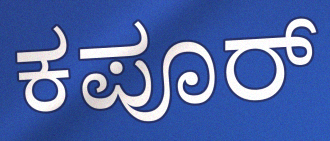
ಕಪೂರ್